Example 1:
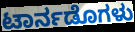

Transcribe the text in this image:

ಟಾರ್ನಡೊಗಳು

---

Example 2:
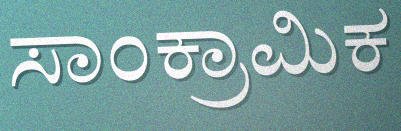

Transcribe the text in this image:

ಸಾಂಕ್ರಾಮಿಕ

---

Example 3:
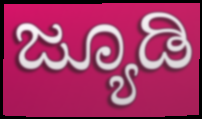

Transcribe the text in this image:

ಜ್ಯೂಡಿ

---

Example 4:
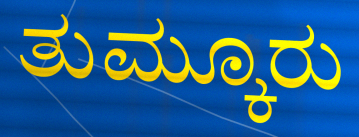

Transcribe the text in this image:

ತುಮ್ಕೂರು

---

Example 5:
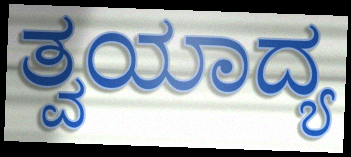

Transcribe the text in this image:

ತ್ವಯಾದ್ಯ